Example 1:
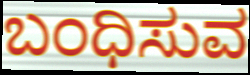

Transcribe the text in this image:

ಬಂಧಿಸುವ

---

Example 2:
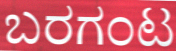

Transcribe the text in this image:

ಬರಗಂಟ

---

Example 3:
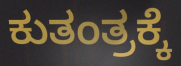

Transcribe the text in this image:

ಕುತಂತ್ರಕ್ಕೆ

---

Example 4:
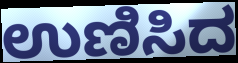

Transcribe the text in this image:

ಉಣಿಸಿದ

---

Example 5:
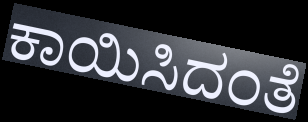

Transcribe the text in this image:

ಕಾಯಿಸಿದಂತೆ